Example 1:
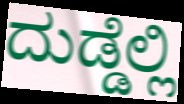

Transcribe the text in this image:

ದುಡ್ಡೆಲ್ಲಿ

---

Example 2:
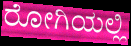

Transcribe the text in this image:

ರೋಗಿಯಲ್ಲಿ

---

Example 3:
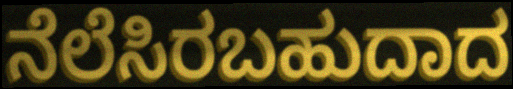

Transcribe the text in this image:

ನೆಲೆಸಿರಬಹುದಾದ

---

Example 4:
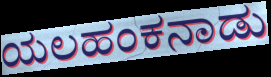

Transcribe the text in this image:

ಯಲಹಂಕನಾಡು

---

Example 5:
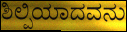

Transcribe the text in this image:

ಶಿಲ್ಪಿಯಾದವನು